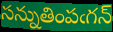
సన్నుతింపఁగన్